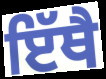
ਇੱਥੈ